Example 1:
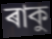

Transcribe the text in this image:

ৰাকু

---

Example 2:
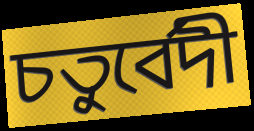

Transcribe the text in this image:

চতুৰ্বেদী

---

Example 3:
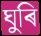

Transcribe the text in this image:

ঘুৰি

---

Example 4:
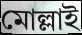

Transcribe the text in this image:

মোল্লাই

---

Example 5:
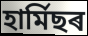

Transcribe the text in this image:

হাৰ্মিছৰ